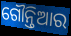
ଗୌନ୍ତିଆର